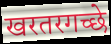
खरतरगच्छे